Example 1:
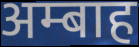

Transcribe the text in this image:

अम्बाह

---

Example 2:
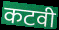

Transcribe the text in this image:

कटवी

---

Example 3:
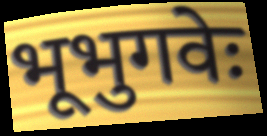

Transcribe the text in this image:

भूभुगवेः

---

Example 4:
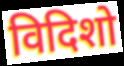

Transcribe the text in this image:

विदिशो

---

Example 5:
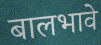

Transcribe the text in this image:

बालभावे